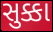
સુક્કા